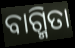
ବାଗ୍ମିତା